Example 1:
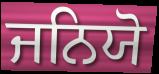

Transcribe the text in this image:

ਜਨਿਯੋ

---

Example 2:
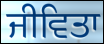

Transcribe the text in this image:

ਜੀਵਿਤਾ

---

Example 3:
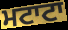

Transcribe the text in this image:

ਮਟਾਟਾ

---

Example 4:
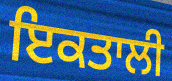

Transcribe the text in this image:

ਇਕਤਾਲੀ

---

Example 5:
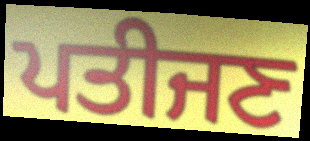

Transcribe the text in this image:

ਪਤੀਜਣ